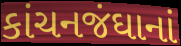
કાંચનજંઘાનાં